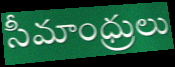
సీమాంధ్రులు